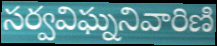
సర్వవిఘ్ననివారిణి